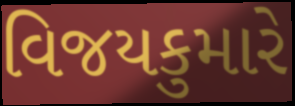
વિજયકુમારે